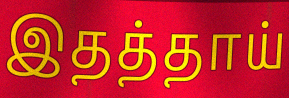
இதத்தாய்